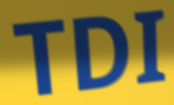
TDI